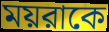
ময়রাকে